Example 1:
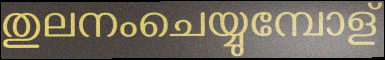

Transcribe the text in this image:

തുലനംചെയ്യുമ്പോള്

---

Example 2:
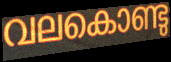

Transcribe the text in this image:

വലകൊണ്ടു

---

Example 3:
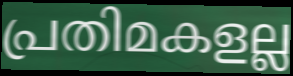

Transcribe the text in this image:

പ്രതിമകളല്ല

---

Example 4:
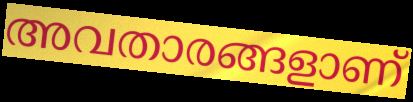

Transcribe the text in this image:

അവതാരങ്ങളാണ്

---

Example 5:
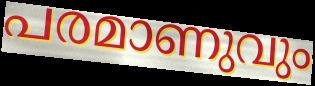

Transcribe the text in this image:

പരമാണുവും